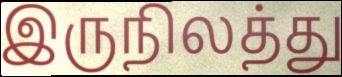
இருநிலத்து